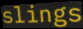
slings